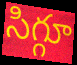
సిగ్గూ